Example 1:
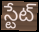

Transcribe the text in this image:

స్టేట్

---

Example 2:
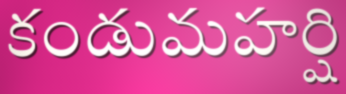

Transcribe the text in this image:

కండుమహర్షి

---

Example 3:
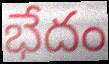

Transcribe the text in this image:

భేదం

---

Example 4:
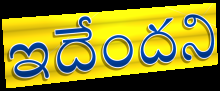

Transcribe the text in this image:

ఇదేందని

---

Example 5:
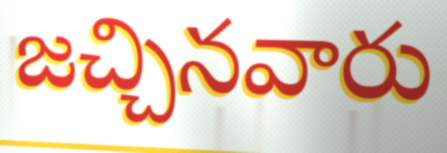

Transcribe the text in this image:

జచ్చినవారు